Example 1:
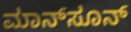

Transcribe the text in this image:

ಮಾನ್‌ಸೂನ್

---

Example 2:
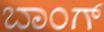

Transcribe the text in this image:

ಬಾಂಗ್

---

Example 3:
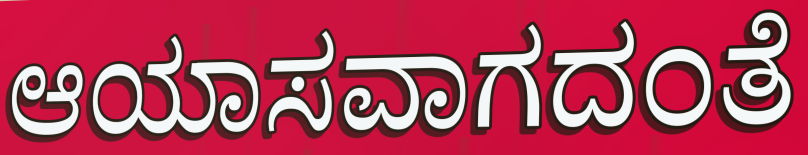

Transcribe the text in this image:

ಆಯಾಸವಾಗದಂತೆ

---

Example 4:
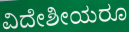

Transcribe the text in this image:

ವಿದೇಶೀಯರೂ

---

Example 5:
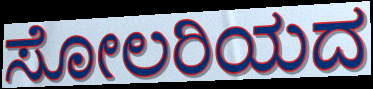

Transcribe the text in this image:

ಸೋಲರಿಯದ